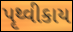
પૃથ્વીકાય